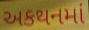
અકથનમાં